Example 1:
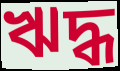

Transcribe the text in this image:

ঋদ্ধ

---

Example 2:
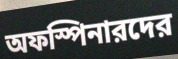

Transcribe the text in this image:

অফস্পিনারদের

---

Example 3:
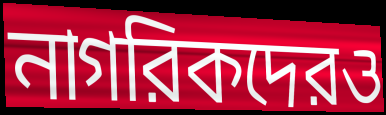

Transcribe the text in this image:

নাগরিকদেরও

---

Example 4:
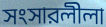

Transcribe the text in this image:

সংসারলীলা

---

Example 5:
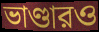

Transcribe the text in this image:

ভাণ্ডারও